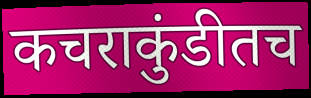
कचराकुंडीतच